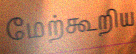
மேற்கூறிய